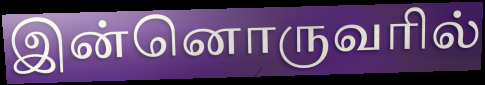
இன்னொருவரில்